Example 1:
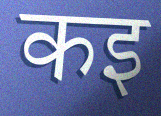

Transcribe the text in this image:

कइ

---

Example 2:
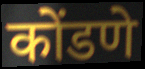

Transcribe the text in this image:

कोंडणे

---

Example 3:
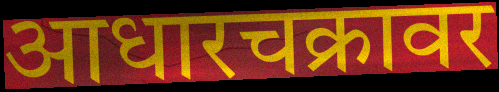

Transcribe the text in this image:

आधारचक्रावर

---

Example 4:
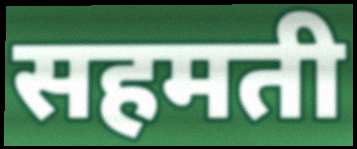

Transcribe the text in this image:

सहमती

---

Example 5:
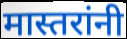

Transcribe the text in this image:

मास्तरांनी